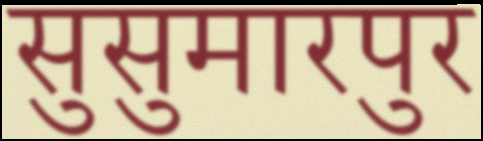
सुसुमारपुर